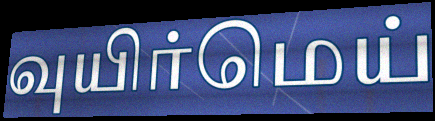
வுயிர்மெய்